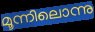
മൂന്നിലൊന്നു